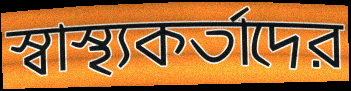
স্বাস্থ্যকর্তাদের